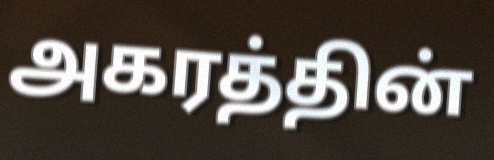
அகரத்தின்